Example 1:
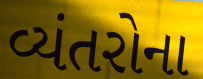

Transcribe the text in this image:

વ્યંતરોના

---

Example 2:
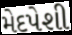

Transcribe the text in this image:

મેદપેશી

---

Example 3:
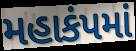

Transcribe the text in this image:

મહાકંપમાં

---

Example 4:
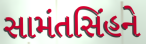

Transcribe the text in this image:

સામંતસિંહને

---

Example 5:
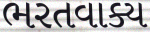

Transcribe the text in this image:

ભરતવાક્ય